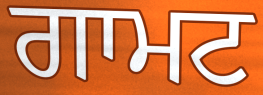
ਗਾਮਟ